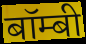
बॉम्बी